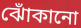
ঝোঁকানো